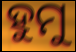
ହୁମୁ